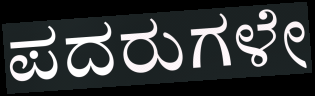
ಪದರುಗಳೇ